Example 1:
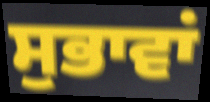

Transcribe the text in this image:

ਸੁਭਾਵਾਂ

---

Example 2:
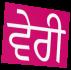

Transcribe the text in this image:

ਵੇਰੀ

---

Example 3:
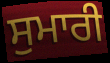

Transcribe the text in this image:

ਸੁਮਾਰੀ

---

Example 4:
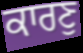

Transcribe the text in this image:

ਕਾਰਣੁ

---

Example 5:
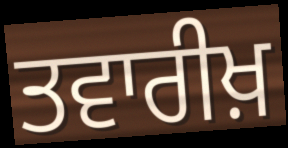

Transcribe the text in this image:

ਤਵਾਰੀਖ਼